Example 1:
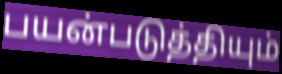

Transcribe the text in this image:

பயன்படுத்தியும்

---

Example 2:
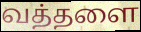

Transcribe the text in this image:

வத்தளை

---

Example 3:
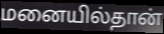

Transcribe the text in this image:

மனையில்தான்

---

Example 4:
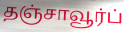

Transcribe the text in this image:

தஞ்சாவூர்ப்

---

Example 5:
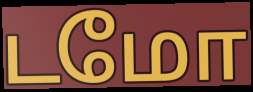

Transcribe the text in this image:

டமோ